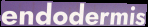
endodermis